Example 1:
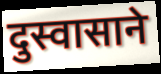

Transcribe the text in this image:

दुस्वासाने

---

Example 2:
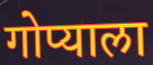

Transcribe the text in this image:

गोप्याला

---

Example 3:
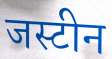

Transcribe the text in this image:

जस्टीन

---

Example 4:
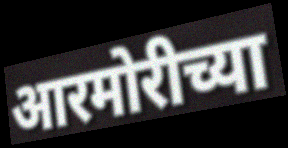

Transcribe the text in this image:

आरमोरीच्या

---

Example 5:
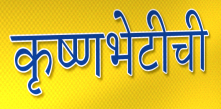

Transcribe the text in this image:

कृष्णभेटीची